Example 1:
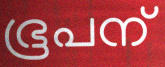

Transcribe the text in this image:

ഭൂപന്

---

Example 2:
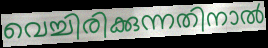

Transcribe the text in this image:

വെച്ചിരിക്കുന്നതിനാൽ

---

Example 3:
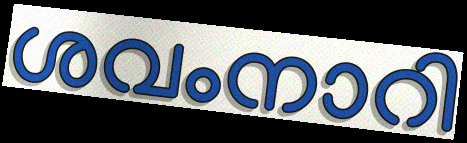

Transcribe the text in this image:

ശവംനാറി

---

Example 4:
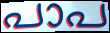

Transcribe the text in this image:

പാപ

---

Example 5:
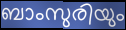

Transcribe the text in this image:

ബാംസുരിയും